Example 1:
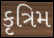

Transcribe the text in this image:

કૃત્રિમ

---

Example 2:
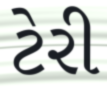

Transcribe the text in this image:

ટેરી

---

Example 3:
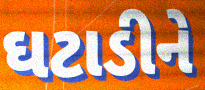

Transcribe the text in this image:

ઘટાડીને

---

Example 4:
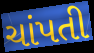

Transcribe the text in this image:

ચાંપતી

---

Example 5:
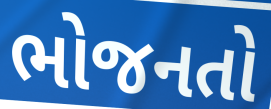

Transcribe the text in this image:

ભોજનતો